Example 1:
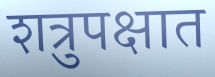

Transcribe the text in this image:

शत्रुपक्षात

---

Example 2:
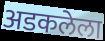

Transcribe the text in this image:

अडकलेला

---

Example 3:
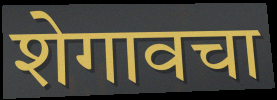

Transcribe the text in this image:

शेगावचा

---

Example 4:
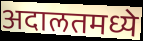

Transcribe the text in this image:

अदालतमध्ये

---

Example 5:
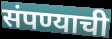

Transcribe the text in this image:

संपण्याची